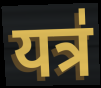
यत्र॑